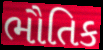
ભૌતિક